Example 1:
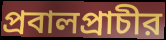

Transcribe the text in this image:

প্রবালপ্রাচীর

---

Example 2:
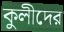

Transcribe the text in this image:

কুলীদের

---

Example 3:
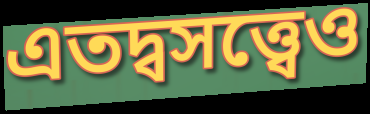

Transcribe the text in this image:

এতদ্বসত্ত্বেও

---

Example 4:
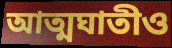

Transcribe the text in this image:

আত্মঘাতীও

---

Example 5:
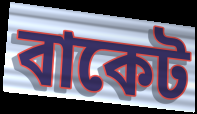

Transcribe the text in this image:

বাকেট